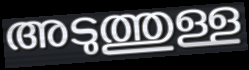
അടുത്തുള്ള